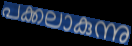
പക്കലാകുന്നു